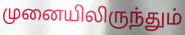
முனையிலிருந்தும்